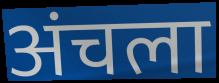
अंचला